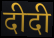
दीदी